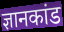
ज्ञानकांड